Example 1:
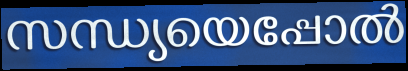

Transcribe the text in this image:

സന്ധ്യയെപ്പോൽ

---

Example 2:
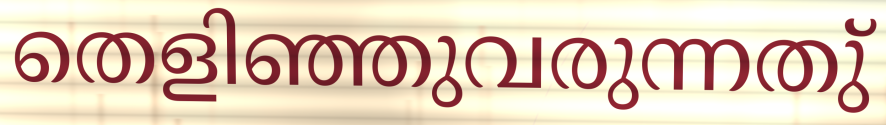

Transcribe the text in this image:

തെളിഞ്ഞുവരുന്നതു്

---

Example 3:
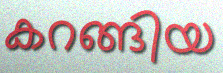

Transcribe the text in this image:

കറങ്ങിയ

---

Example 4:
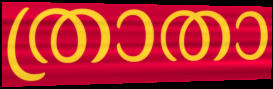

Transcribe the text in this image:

ത്രാതാ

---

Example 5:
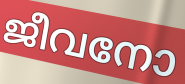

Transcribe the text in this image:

ജീവനോ